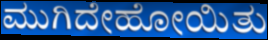
ಮುಗಿದೇಹೋಯಿತು